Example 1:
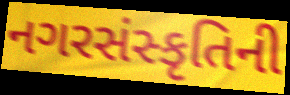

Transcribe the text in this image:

નગરસંસ્કૃતિની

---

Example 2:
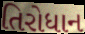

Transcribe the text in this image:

તિરોધાન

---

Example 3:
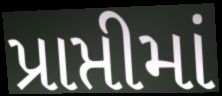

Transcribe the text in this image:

પ્રાપ્તીમાં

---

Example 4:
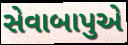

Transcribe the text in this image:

સેવાબાપુએ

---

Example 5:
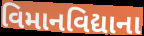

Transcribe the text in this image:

વિમાનવિદ્યાના